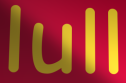
lull